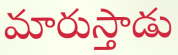
మారుస్తాడు